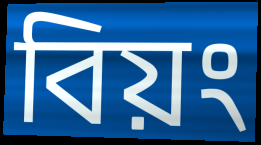
বিয়ং